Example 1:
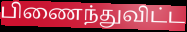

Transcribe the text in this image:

பிணைந்துவிட்ட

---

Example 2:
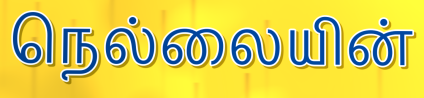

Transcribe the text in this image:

நெல்லையின்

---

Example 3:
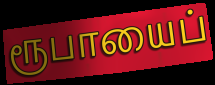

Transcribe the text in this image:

ரூபாயைப்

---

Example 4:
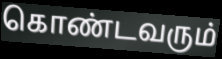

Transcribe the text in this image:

கொண்டவரும்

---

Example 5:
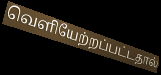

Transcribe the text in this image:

வெளியேற்றப்பட்டதால்